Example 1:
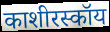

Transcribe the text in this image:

काशीरस्कॉय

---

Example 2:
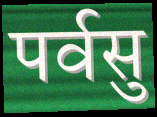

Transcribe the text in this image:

पर्वसु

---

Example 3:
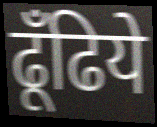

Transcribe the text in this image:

ढूँढिये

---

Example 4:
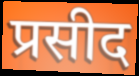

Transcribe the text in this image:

प्रसीद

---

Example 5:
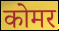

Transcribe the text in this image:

कोमर